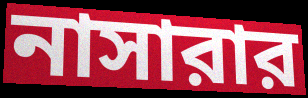
নাসারার